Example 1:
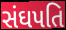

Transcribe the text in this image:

સંઘપતિ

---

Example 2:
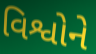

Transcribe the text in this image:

વિશ્વોને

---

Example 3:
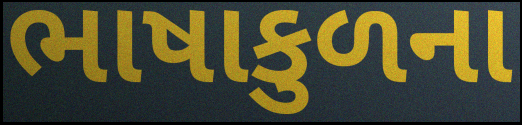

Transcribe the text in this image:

ભાષાકુળના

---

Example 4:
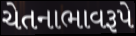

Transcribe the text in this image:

ચેતનાભાવરૂપે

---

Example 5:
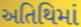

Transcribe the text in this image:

અતિથિમાં